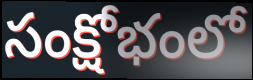
సంక్షోభంలో